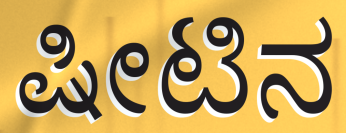
ಷೀಟಿನ